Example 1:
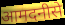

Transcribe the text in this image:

आमदनीसे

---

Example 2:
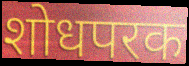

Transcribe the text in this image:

शोधपरक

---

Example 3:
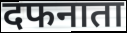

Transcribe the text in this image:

दफनाता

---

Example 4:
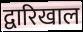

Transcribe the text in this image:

द्वारिखाल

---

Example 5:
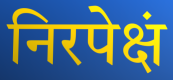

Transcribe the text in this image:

निरपेक्षं